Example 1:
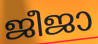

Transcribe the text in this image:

ജീജാ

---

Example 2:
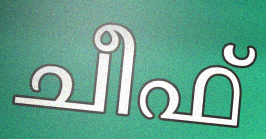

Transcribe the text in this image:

ചീഫ്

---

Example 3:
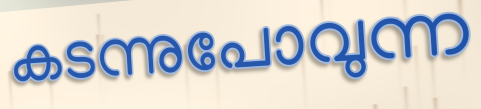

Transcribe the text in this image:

കടന്നുപോവുന്ന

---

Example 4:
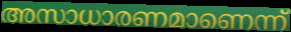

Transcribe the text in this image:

അസാധാരണമാണെന്ന്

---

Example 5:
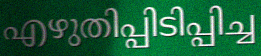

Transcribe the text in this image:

എഴുതിപ്പിടിപ്പിച്ച